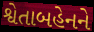
શ્વેતાબહેનને